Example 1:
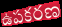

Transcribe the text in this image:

ఉపకరణ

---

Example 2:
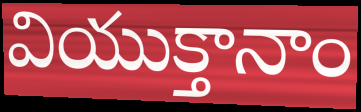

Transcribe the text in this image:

వియుక్తానాం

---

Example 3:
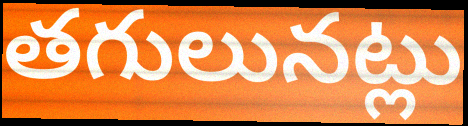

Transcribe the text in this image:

తగులునట్లు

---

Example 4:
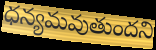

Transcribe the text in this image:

ధన్యమవుతుందని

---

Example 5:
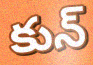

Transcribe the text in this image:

కున్